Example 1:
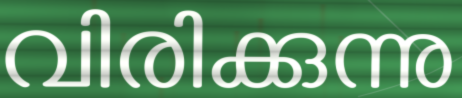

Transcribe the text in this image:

വിരിക്കുന്നു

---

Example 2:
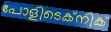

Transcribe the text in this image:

പോളിടെക്നിക്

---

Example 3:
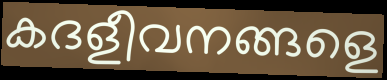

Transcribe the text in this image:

കദളീവനങ്ങളെ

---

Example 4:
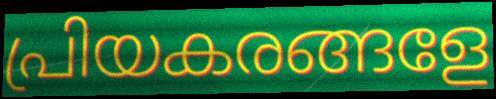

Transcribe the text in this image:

പ്രിയകരങ്ങളേ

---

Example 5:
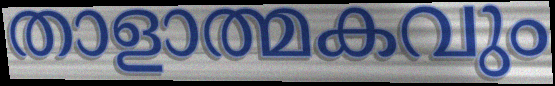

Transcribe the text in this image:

താളാത്മകവും